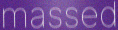
massed